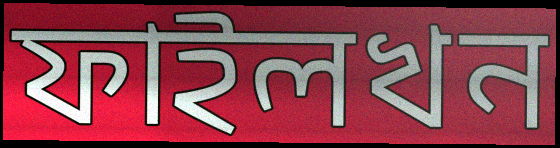
ফাইলখন